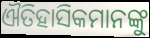
ଐତିହାସିକମାନଙ୍କୁ